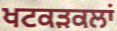
ਖਟਕੜਕਲਾਂ